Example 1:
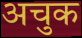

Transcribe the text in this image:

अचुक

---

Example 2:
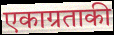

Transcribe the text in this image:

एकाग्रताकी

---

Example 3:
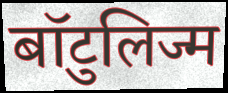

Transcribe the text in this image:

बॉटुलिज्म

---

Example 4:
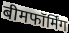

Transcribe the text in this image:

बीमफॉर्मिंग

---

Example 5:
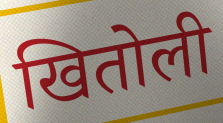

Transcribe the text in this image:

खितोली